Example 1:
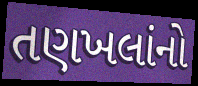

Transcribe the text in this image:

તણખલાંનો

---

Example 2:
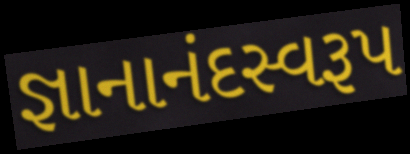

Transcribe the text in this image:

જ્ઞાનાનંદસ્વરૂપ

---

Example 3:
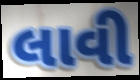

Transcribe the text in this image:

લાવી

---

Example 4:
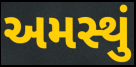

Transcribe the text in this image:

અમસ્થું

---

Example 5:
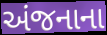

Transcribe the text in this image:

અંજનાના